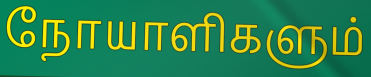
நோயாளிகளும்